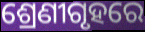
ଶ୍ରେଣୀଗୃହରେ